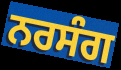
ਨਰਸੰਗ